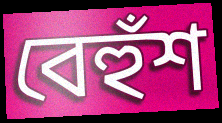
বেহুঁশ